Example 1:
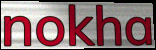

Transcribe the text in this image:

nokha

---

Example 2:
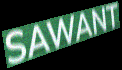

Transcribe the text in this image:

SAWANT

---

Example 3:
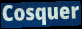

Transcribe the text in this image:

Cosquer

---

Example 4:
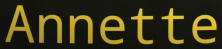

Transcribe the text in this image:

Annette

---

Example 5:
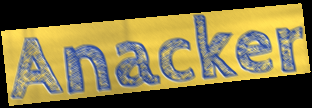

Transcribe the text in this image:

Anacker